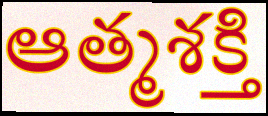
ఆత్మశక్తి